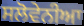
ਸਲੋਵੇਨੀਆ